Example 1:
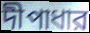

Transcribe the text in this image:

দীপাধার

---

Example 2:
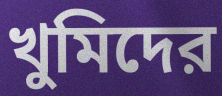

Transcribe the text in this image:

খুমিদের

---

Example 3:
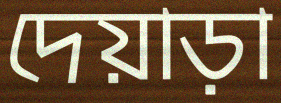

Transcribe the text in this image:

দেয়াড়া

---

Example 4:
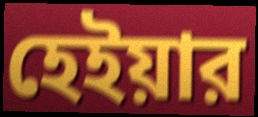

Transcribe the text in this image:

হেইয়ার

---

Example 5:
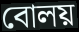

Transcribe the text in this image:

বোলয়